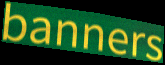
banners